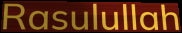
Rasulullah